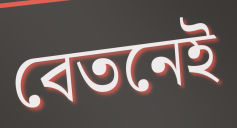
বেতনেই